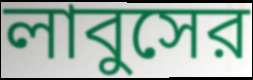
লাবুসের